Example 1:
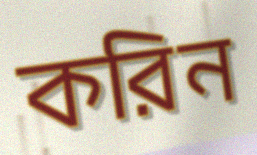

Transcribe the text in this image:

করিন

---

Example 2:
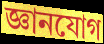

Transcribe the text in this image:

জ্ঞানযোগ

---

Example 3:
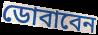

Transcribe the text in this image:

ডোবাবেন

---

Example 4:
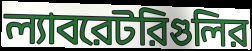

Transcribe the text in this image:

ল্যাবরেটরিগুলির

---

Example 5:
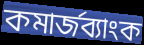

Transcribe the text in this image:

কমার্জব্যাংক